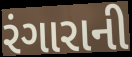
રંગારાની